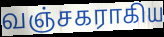
வஞ்சகராகிய